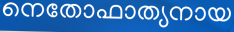
നെതോഫാത്യനായ